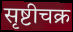
सृष्टीचक्र